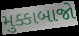
મુક્કાબાજો